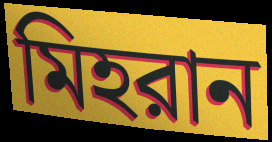
মিহরান